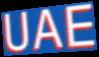
UAE